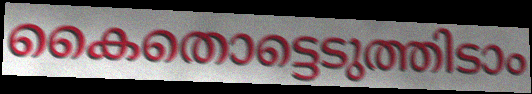
കൈതൊട്ടെടുത്തിടാം